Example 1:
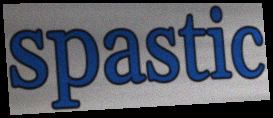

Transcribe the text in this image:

spastic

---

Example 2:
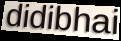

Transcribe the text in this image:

didibhai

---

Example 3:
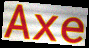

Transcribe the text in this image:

Axe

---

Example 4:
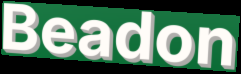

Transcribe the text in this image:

Beadon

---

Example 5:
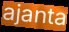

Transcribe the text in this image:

ajanta